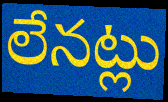
లేనట్లు